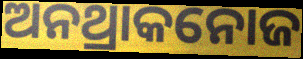
ଅନଥ୍ରାକନୋଜ